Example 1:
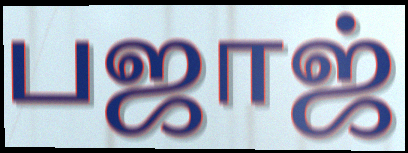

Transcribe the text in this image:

பஜாஜ்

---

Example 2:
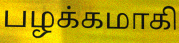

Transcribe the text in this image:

பழக்கமாகி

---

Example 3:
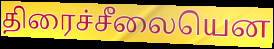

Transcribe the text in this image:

திரைச்சீலையென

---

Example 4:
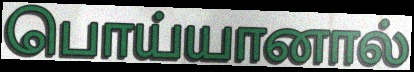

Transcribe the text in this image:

பொய்யானால்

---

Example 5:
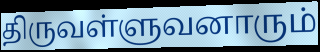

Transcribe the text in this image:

திருவள்ளுவனாரும்